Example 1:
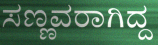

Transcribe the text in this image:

ಸಣ್ಣವರಾಗಿದ್ದ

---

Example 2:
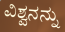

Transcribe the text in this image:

ವಿಶ್ವನನ್ನು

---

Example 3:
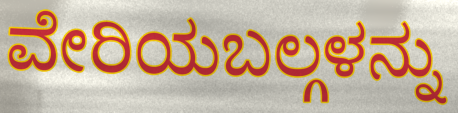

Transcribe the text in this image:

ವೇರಿಯಬಲ್ಗಳನ್ನು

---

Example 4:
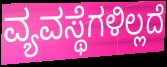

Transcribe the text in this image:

ವ್ಯವಸ್ಥೆಗಳಿಲ್ಲದೆ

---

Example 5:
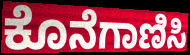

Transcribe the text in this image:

ಕೊನೆಗಾಣಿಸಿ